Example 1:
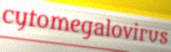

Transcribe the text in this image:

cytomegalovirus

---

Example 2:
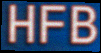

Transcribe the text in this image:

HFB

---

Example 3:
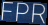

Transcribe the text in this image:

FPR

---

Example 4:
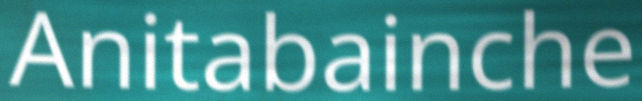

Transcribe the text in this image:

Anitabainche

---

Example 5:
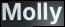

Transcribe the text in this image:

Molly